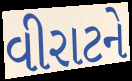
વીરાટને